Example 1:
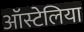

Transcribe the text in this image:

ऑस्टेलिया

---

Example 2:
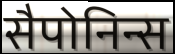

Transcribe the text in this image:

सैपोनिन्स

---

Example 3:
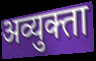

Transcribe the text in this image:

अव्युक्ता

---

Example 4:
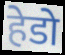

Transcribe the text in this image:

हेडो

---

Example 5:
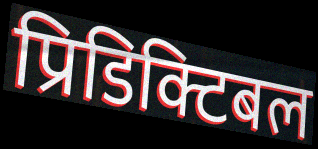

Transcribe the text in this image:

प्रिडिक्टिबल